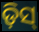
ଡ଼ିସ୍